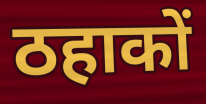
ठहाकों